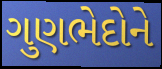
ગુણભેદોને